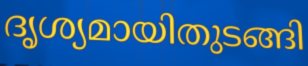
ദൃശ്യമായിതുടങ്ങി